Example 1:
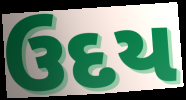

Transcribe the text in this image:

ઉદય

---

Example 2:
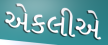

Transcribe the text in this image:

એકલીએ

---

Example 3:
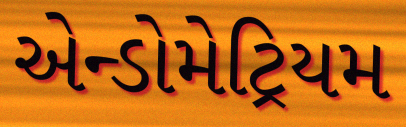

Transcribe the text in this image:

એન્ડોમેટ્રિયમ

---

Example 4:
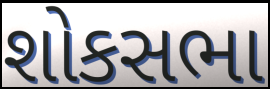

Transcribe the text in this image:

શોકસભા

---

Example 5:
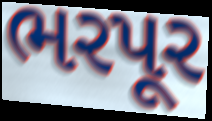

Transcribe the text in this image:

ભરપૂર